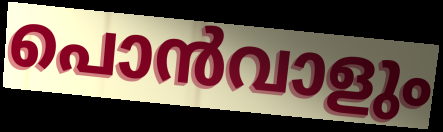
പൊൻവാളും